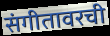
संगीतावरची